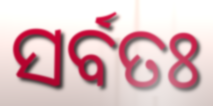
ସର୍ବତଃ